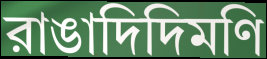
রাঙাদিদিমণি